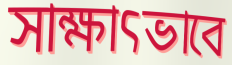
সাক্ষাৎভাবে